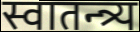
स्वातन्त्र्य